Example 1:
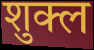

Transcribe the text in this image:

शुक्‍ल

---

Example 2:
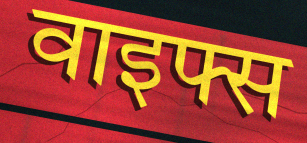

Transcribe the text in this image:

वाइफ्स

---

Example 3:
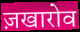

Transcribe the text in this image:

ज़खारोव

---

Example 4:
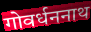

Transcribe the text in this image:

गोवर्धननाथ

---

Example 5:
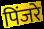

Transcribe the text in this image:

पिंजरे